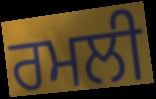
ਰਮਲੀ